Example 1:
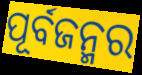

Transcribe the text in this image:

ପୂର୍ବଜନ୍ମର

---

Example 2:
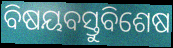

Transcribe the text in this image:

ବିଷୟବସ୍ତୁବିଶେଷ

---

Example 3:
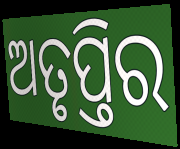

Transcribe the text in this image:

ଅତୃପ୍ତିର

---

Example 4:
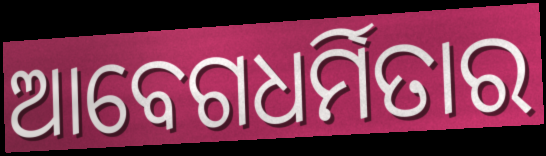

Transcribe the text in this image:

ଆବେଗଧର୍ମିତାର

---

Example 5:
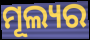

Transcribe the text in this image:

ମୂଲ୍ୟର